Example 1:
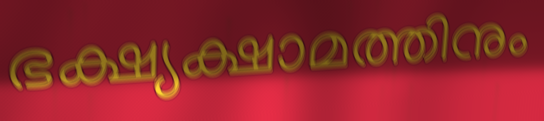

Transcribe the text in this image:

ഭക്ഷ്യക്ഷാമത്തിനും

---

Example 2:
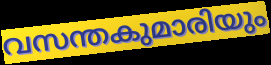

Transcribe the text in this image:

വസന്തകുമാരിയും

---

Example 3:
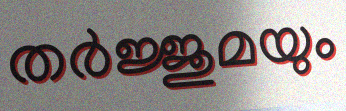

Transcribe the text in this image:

തർജ്ജുമയും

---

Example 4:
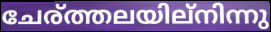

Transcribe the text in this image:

ചേര്ത്തലയില്നിന്നു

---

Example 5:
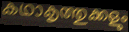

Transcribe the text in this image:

കഥാകൃത്തുക്കളും